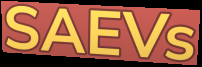
SAEVs